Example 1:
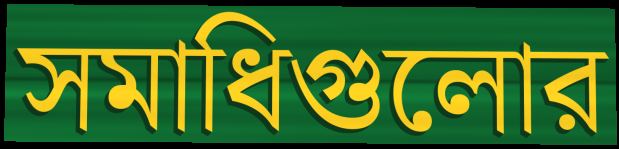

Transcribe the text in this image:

সমাধিগুলোর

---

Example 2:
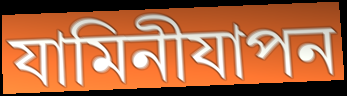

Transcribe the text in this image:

যামিনীযাপন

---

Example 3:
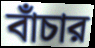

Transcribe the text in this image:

বাঁচার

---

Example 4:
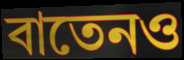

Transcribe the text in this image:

বাতেনও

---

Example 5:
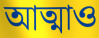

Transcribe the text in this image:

আত্মাও